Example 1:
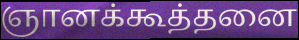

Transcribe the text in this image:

ஞானக்கூத்தனை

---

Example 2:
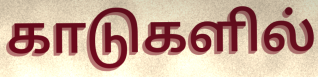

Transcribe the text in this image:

காடுகளில்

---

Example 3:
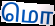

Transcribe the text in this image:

மொ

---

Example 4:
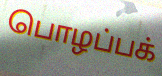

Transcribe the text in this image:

பொழப்பக்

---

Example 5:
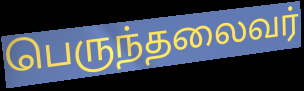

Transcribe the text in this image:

பெருந்தலைவர்